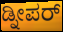
ಡ್ನೀಪರ್